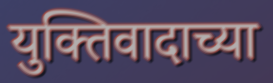
युक्तिवादाच्या